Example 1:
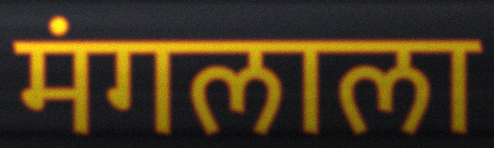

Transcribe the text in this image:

मंगलाला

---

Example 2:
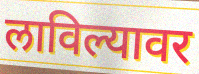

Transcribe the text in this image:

लाविल्यावर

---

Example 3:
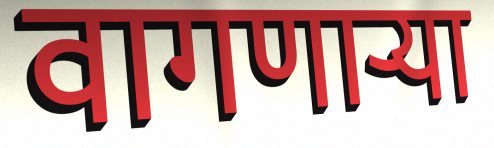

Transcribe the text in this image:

वागणाऱ्या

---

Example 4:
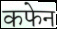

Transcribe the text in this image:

कफेन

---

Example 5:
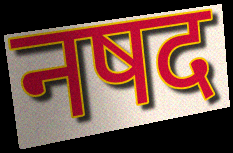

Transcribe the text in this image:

नषद